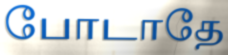
போடாதே